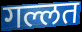
गल्लत